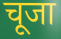
चूजा